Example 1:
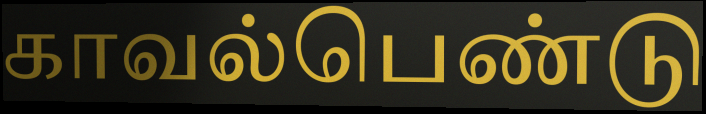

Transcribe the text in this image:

காவல்பெண்டு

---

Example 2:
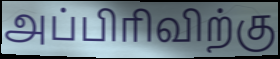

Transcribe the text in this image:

அப்பிரிவிற்கு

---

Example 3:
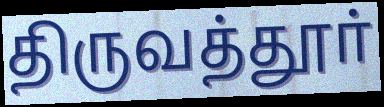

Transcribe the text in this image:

திருவத்தூர்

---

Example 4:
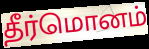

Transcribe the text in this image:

தீர்மொனம்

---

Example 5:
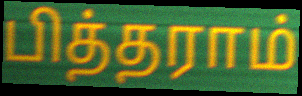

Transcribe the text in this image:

பித்தராம்